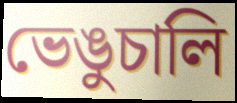
ভেঙুচালি